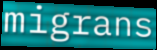
migrans